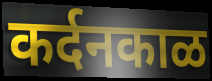
कर्दनकाळ